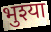
भुश्या